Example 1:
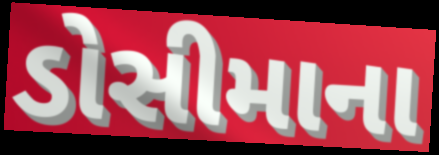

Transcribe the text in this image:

ડોસીમાના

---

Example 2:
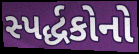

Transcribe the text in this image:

સ્પર્દ્ધકોનો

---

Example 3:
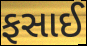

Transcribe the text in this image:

ફસાઈ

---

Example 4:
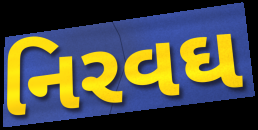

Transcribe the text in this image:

નિરવઘ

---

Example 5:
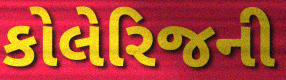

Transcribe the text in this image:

કોલેરિજની